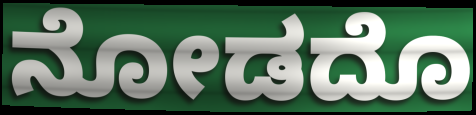
ನೋಡದೊ